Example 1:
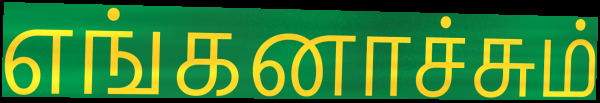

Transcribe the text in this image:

எங்கனாச்சும்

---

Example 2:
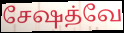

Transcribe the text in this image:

சேஷத்வே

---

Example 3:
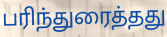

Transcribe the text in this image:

பரிந்துரைத்தது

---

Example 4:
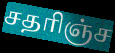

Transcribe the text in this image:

சதரிஞ்ச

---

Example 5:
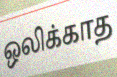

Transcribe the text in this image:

ஒலிக்காத